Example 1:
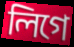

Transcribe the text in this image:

লিগে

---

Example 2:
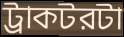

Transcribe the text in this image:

ট্রাকটরটা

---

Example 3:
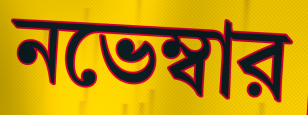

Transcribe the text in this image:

নভেম্বার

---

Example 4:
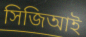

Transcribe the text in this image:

সিজিআই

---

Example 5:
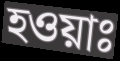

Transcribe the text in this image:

হওয়াঃ